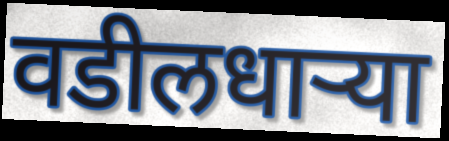
वडीलधार्‍या